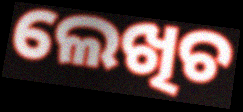
ଲେଖିଚ